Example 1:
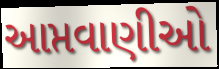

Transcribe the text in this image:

આપ્તવાણીઓ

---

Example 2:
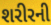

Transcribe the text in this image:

શરીરની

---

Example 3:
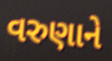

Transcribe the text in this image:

વરુણાને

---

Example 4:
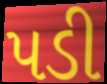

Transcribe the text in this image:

પડી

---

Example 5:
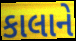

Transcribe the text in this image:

કાલાને